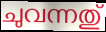
ചുവന്നതു്